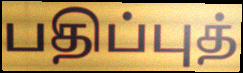
பதிப்புத்